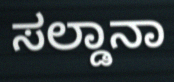
ಸಲ್ಡಾನಾ